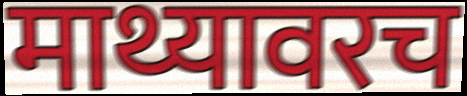
माथ्यावरच